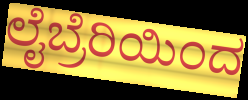
ಲೈಬ್ರೆರಿಯಿಂದ